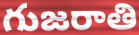
గుజరాతి